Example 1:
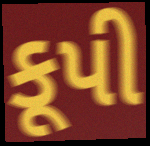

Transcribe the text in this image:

કૂપી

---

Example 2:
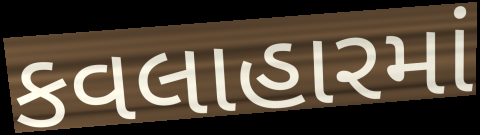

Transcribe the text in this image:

કવલાહારમાં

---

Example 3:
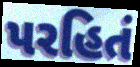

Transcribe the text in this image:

પરહિતં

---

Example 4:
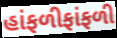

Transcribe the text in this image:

હાંફળીફાંફળી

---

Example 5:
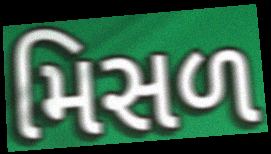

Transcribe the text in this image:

મિસળ